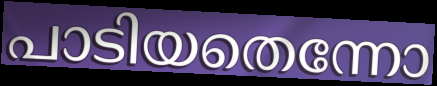
പാടിയതെന്നോ